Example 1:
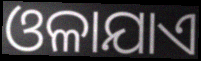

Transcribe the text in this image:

ଓଳାଯାଏ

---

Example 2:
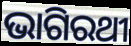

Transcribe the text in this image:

ଭାଗିରଥୀ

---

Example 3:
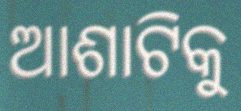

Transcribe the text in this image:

ଆଶାଟିକୁ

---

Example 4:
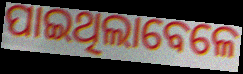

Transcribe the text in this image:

ପାଇଥିଲାବେଳେ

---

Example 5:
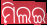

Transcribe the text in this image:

ମିଲଇ